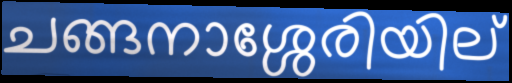
ചങ്ങനാശ്ശേരിയില്